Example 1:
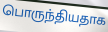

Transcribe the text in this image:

பொருந்தியதாக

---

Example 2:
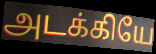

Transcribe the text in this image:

அடக்கியே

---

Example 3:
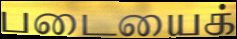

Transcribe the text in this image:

படையைக்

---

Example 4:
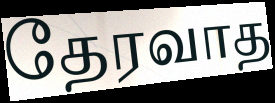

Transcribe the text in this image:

தேரவாத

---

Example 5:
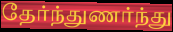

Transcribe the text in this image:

தேர்ந்துணர்ந்து